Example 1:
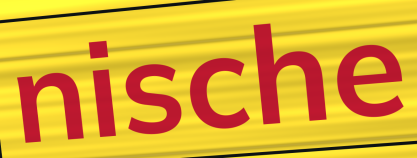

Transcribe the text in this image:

nische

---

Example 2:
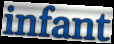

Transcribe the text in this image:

infant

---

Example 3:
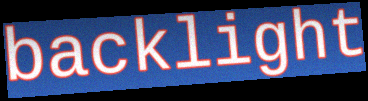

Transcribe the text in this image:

backlight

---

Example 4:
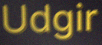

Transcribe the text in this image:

Udgir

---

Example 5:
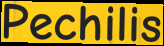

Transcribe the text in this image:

Pechilis